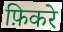
फ़िकरे